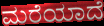
ಮರೆಯಾದೆ